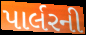
પાર્લરની